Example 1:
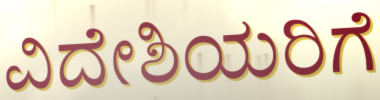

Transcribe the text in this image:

ವಿದೇಶಿಯರಿಗೆ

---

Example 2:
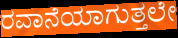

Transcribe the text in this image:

ರವಾನೆಯಾಗುತ್ತಲೇ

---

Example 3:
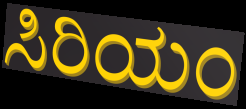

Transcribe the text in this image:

ಸಿರಿಯಂ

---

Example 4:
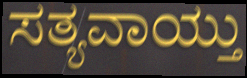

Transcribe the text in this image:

ಸತ್ಯವಾಯ್ತು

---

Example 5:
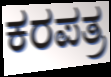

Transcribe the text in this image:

ಕರಪತ್ರ